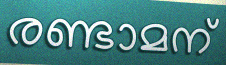
രണ്ടാമന്